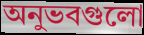
অনুভবগুলো